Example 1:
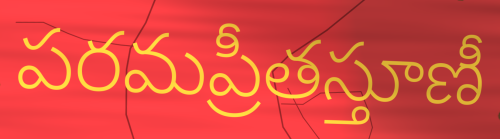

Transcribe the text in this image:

పరమప్రీతస్తూణీ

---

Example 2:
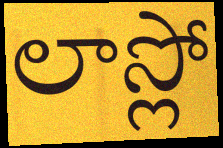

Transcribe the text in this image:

లాస్లో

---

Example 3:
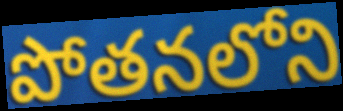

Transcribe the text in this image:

పోతనలోని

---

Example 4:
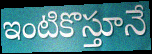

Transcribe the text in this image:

ఇంటికొస్తూనే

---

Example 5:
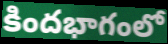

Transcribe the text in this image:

కిందభాగంలో